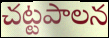
చట్టపాలన